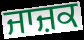
ਜਾਜ਼ਕ